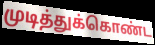
முடித்துக்கொண்ட